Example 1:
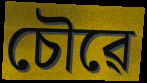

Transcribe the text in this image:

চৌৱে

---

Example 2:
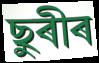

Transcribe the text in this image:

ছুৰীৰ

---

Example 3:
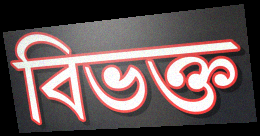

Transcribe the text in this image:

বিভক্ত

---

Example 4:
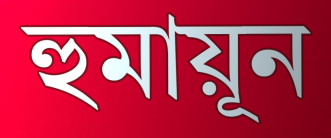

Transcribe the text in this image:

হুমায়ূন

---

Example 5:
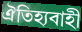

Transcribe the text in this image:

ঐতিহ্যবাহী